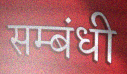
सम्बंधी